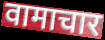
वामाचार